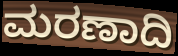
ಮರಣಾದಿ